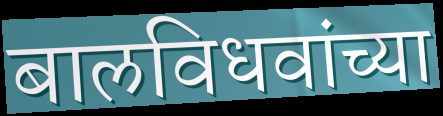
बालविधवांच्या